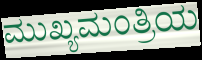
ಮುಖ್ಯಮಂತ್ರಿಯ